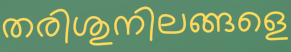
തരിശുനിലങ്ങളെ